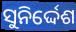
ସୁନିର୍ଦ୍ଦେଶ